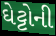
ઘેટ્ટોની